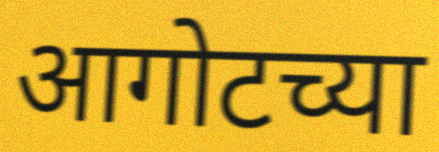
आगोटच्या